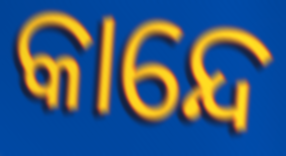
କାନ୍ଦେ